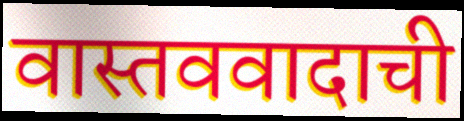
वास्तववादाची